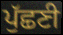
ਪੁੱਛਣੀ